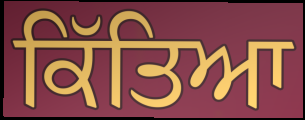
ਕਿੱਤਿਆ